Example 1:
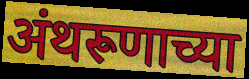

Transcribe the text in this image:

अंथरूणाच्या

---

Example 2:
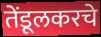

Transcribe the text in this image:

तेंडूलकरचे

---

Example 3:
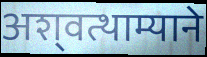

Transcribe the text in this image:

अश्वत्थाम्याने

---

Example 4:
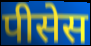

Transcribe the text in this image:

पीसेस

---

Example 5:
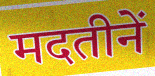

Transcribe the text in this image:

मदतीनें